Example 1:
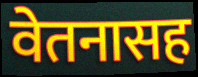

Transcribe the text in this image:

वेतनासह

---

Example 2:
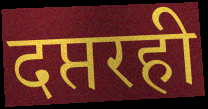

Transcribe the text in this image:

दप्तरही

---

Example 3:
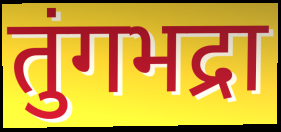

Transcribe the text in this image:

तुंगभद्रा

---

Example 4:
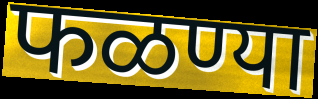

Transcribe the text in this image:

फळण्या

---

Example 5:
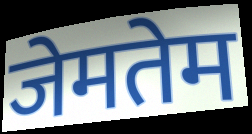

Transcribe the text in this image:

जेमतेम